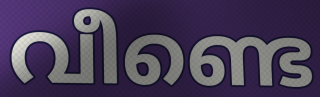
വീണ്ടെ